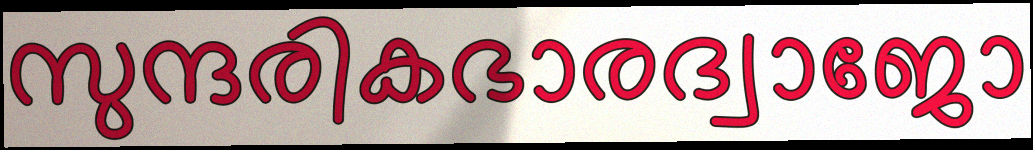
സുന്ദരികഭാരദ്വാജോ